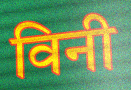
विनी